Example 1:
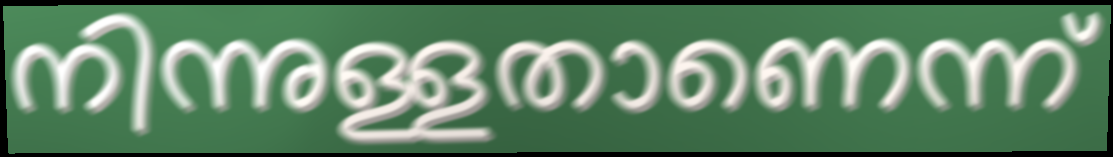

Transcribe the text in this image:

നിന്നുള്ളതാണെന്ന്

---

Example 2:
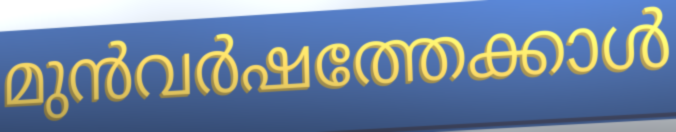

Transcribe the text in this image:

മുൻവർഷത്തേക്കാൾ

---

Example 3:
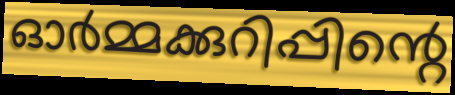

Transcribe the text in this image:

ഓർമ്മക്കുറിപ്പിന്റെ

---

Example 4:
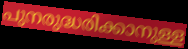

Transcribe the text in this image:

പുനരുദ്ധരിക്കാനുള്ള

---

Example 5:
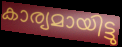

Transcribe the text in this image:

കാര്യമായിട്ടു